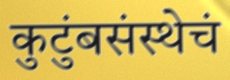
कुटुंबसंस्थेचं